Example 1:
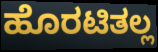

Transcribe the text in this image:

ಹೊರಟಿತಲ್ಲ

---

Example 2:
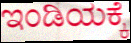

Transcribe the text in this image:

ಇಂಡಿಯಕ್ಕೆ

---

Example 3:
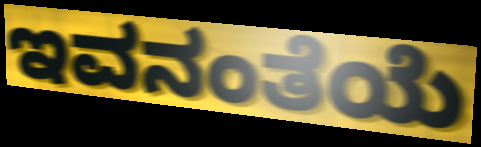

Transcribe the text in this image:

ಇವನಂತೆಯೆ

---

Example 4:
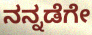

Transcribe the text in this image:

ನನ್ನಡೆಗೇ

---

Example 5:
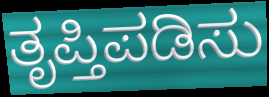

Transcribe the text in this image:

ತೃಪ್ತಿಪಡಿಸು